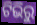
ଟିଭିରୁ